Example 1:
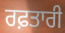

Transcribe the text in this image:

ਰਫ਼ਤਾਰੀ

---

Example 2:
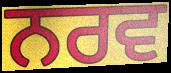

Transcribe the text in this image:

ਨਰਵ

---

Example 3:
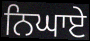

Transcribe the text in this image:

ਨਿਘਾਏ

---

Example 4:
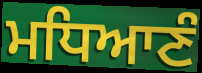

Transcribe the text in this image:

ਮਧਿਆਣੰ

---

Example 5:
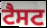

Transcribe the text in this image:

ਟੈਸਟ